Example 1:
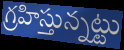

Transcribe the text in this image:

గ్రహిస్తున్నట్టు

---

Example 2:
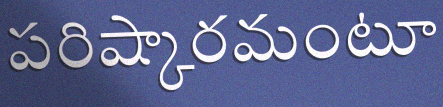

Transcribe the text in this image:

పరిష్కారమంటూ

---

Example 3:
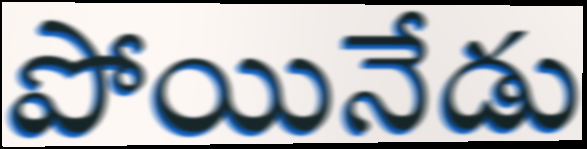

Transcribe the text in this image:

పోయినేడు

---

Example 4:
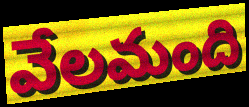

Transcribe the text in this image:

వేలమంది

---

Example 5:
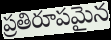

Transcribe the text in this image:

ప్రతిరూపమైన